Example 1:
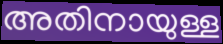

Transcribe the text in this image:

അതിനായുള്ള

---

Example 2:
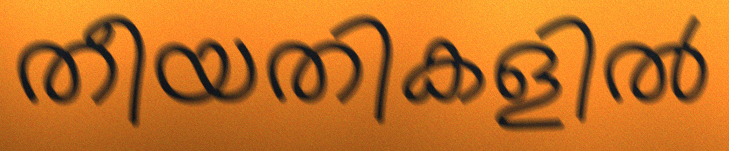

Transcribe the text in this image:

തീയതികളിൽ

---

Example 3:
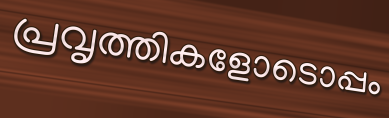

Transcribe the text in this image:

പ്രവൃത്തികളോടൊപ്പം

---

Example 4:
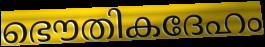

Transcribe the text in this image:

ഭൌതികദേഹം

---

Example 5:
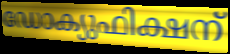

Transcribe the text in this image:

ഡോക്യുഫിക്ഷന്